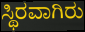
ಸ್ಥಿರವಾಗಿರು